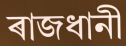
ৰাজধানী